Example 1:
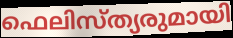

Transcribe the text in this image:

ഫെലിസ്ത്യരുമായി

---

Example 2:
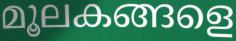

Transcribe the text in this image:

മൂലകങ്ങളെ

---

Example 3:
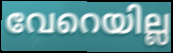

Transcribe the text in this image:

വേറെയില്ല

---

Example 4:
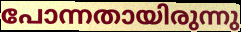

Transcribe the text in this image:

പോന്നതായിരുന്നു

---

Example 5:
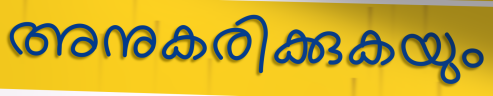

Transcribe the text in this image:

അനുകരിക്കുകയും